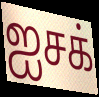
ஐசக்